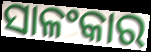
ସାଳଂକାର